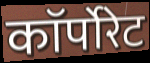
कॉर्पोरेट